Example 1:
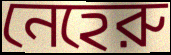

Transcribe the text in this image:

নেহেরু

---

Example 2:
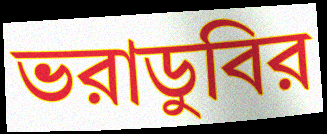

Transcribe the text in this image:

ভরাডুবির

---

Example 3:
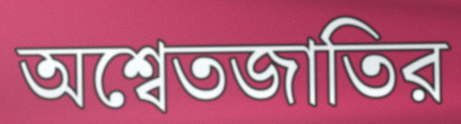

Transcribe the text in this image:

অশ্বেতজাতির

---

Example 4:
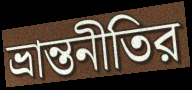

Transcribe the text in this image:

ভ্রান্তনীতির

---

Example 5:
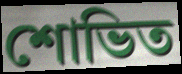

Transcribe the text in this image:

শোভিত